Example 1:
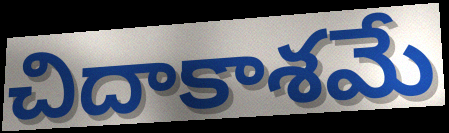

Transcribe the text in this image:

చిదాకాశమే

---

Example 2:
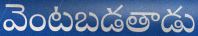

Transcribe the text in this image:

వెంటబడతాడు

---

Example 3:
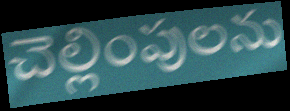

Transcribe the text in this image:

చెల్లింపులను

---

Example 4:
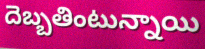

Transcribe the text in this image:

దెబ్బతింటున్నాయి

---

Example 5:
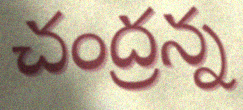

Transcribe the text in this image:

చంద్రన్న